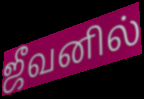
ஜீவனில்